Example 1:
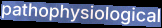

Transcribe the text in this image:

pathophysiological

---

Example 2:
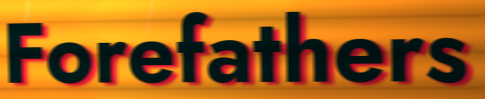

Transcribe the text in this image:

Forefathers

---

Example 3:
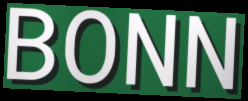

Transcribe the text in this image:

BONN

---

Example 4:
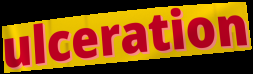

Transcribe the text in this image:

ulceration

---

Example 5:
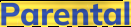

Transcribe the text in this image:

Parental